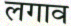
लगाव